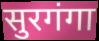
सुरगंगा